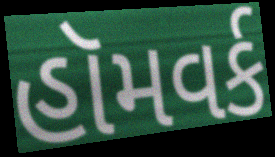
હૉમવર્ક